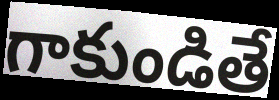
గాకుండితే